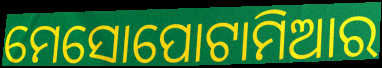
ମେସୋପୋଟାମିଆର